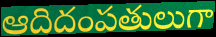
ఆదిదంపతులుగా